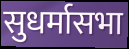
सुधर्मासभा